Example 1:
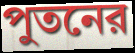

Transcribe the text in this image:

পুতনের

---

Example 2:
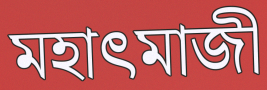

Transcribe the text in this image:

মহাৎমাজী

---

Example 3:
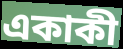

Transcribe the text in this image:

একাকী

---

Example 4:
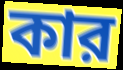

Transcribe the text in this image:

কার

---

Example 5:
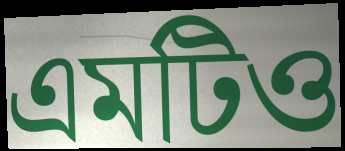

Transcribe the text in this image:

এমটিও